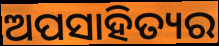
ଅପସାହିତ୍ୟର